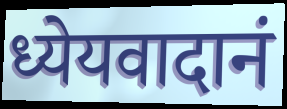
ध्येयवादानं